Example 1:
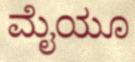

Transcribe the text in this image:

ಮೈಯೂ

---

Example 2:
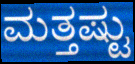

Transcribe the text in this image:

ಮತ್ತಷ್ಟು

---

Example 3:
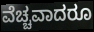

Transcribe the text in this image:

ವೆಚ್ಚವಾದರೂ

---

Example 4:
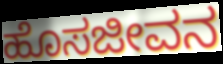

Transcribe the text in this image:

ಹೊಸಜೀವನ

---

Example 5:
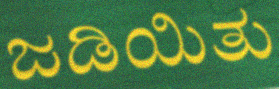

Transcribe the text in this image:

ಜಡಿಯಿತು